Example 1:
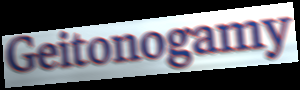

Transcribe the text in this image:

Geitonogamy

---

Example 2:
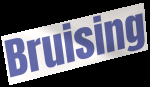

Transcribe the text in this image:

Bruising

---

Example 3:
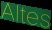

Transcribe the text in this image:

Altes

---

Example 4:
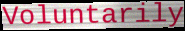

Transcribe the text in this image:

Voluntarily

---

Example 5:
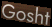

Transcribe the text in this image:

Gosht